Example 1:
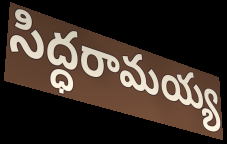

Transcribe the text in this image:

సిద్ధరామయ్య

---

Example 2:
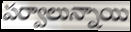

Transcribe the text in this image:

పర్వాలున్నాయి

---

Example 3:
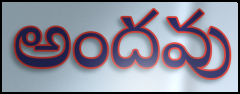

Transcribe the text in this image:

అందవు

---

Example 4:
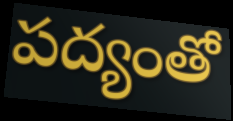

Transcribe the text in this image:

పద్యంతో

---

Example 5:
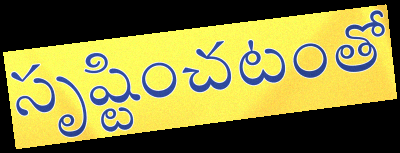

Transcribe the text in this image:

సృష్టించటంతో